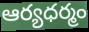
ఆర్యధర్మం